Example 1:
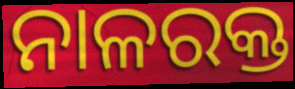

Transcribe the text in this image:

ନାଳରକ୍ତ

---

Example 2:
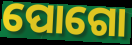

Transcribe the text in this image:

ପୋଗୋ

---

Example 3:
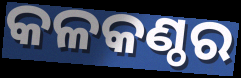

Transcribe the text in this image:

କଳକଣ୍ଠର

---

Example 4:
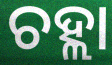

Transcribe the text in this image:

ଚହ୍ଲା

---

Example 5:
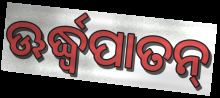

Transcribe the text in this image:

ଊର୍ଦ୍ଧ୍ବପାତନ୍